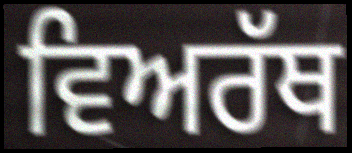
ਵਿਅਰੱਥ